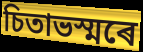
চিতাভস্মৰে